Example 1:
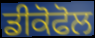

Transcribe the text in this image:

ਡੀਕੋਫੋਲ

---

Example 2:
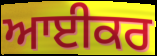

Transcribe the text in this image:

ਆਈਕਰ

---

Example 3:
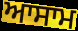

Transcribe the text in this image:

ਆਸਾਮ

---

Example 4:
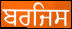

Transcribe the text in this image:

ਬਰਜਿਸ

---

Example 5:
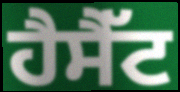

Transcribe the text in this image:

ਹੈਸੈੱਟ